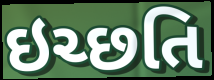
ઇચ્છતિ